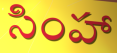
సింహా